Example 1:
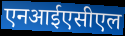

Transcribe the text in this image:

एनआईएसीएल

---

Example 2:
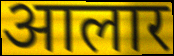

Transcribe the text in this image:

आलार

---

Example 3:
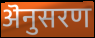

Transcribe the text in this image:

ऄनुसरण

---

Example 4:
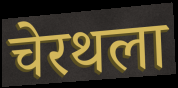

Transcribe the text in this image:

चेरथला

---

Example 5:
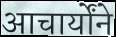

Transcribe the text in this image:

आचार्योंने